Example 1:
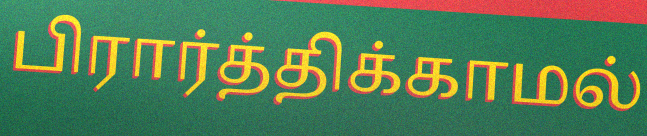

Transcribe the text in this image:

பிரார்த்திக்காமல்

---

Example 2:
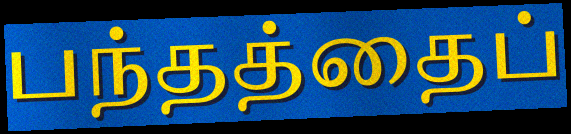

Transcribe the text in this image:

பந்தத்தைப்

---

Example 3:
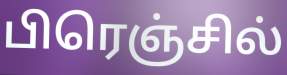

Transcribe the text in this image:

பிரெஞ்சில்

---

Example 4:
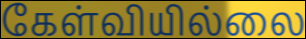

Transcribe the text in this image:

கேள்வியில்லை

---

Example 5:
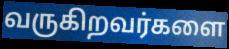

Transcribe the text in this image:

வருகிறவர்களை